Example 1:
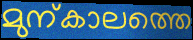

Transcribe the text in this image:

മുന്കാലത്തെ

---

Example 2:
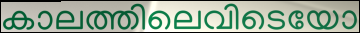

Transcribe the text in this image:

കാലത്തിലെവിടെയോ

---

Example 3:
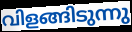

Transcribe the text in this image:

വിളങ്ങിടുന്നു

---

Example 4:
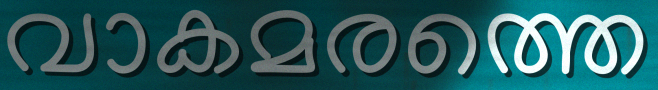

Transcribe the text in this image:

വാകമരത്തെ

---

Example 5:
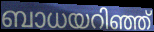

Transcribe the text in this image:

ബാധയറിഞ്ഞ്